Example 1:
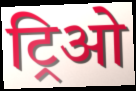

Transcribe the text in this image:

ट्रिओ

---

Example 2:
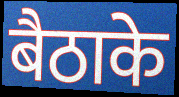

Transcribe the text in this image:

बैठाके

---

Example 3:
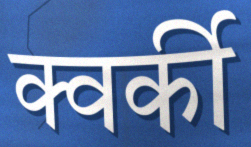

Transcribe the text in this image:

क्वर्की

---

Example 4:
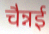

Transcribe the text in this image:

चैन्नई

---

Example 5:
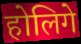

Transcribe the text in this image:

होलिगे